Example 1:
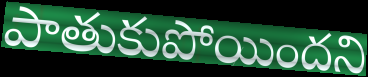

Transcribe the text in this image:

పాతుకుపోయిందని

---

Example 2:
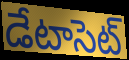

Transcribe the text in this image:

డేటాసెట్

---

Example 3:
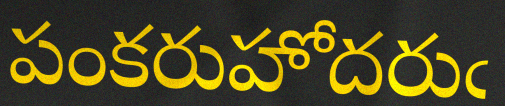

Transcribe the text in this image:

పంకరుహోదరుఁ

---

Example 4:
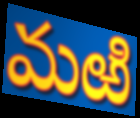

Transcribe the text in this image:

మఱి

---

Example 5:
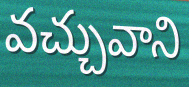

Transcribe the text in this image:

వచ్చువాని